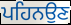
ਪਹਿਨਉਣ